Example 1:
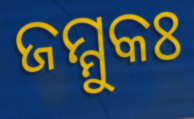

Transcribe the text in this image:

ଜମ୍ମୁକଃ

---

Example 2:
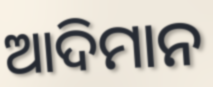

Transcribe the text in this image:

ଆଦିମାନ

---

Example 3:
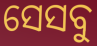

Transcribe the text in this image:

ସେସବୁ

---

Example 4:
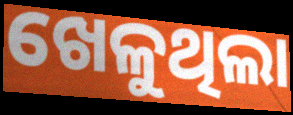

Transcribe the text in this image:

ଖେଳୁଥିଲା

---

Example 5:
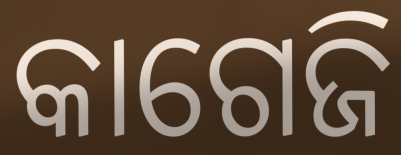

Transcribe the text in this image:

କାଗେଜି